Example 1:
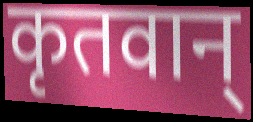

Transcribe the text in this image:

कृतवान्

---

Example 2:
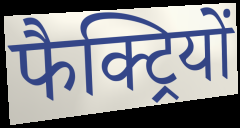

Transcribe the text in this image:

फैक्ट्रियों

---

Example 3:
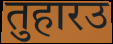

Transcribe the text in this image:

तुहारउ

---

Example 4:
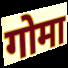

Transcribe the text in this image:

गोमा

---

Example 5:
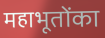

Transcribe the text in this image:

महाभूतोंका